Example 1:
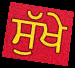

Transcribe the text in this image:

ਸੁੱਖੇ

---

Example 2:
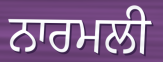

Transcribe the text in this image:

ਨਾਰਮਲੀ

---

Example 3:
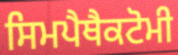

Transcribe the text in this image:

ਸਿਮਪੈਥੈਕਟੋਮੀ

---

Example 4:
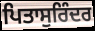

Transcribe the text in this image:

ਪਿਤਾਸੁਰਿੰਦਰ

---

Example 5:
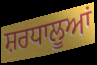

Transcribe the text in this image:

ਸ਼ਰਧਾਲੂਆਂ